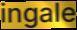
ingale